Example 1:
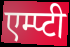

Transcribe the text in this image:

एम्प्टी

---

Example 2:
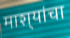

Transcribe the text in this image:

माश्यांचा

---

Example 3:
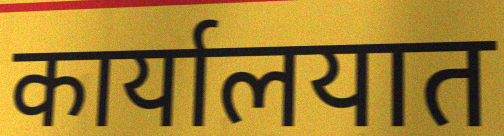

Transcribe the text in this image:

कार्यालयात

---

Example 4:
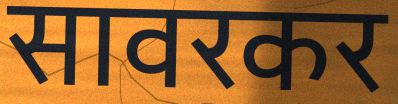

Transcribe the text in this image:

सावरकर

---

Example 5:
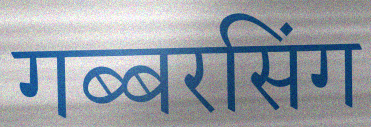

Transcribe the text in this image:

गब्बरसिंग